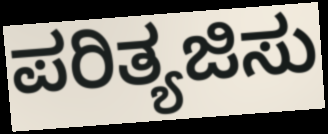
ಪರಿತ್ಯಜಿಸು